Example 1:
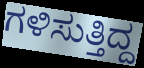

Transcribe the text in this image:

ಗಳಿಸುತ್ತಿದ್ದ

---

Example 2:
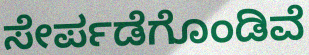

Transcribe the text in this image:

ಸೇರ್ಪಡೆಗೊಂಡಿವೆ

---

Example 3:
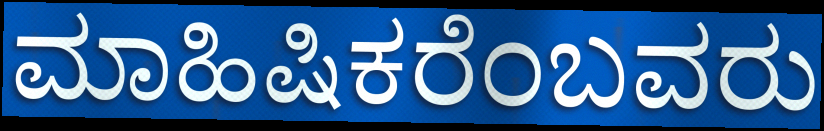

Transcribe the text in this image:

ಮಾಹಿಷಿಕರೆಂಬವರು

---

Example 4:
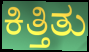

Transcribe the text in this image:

ಕಿತ್ತಿತು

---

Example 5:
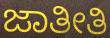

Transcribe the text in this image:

ಜಾತೀತಿ